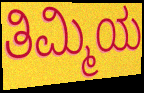
ತಿಮ್ಮಿಯ